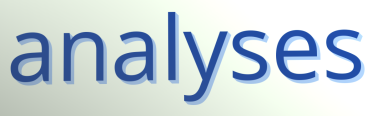
analyses